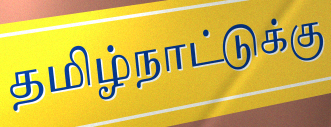
தமிழ்நாட்டுக்கு